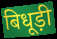
बिधूड़ी